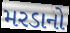
મરડાનો